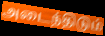
அடைந்திடும்